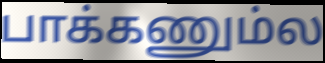
பாக்கணும்ல